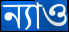
ন্যাও